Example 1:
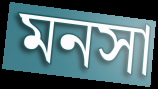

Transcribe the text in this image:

মনসা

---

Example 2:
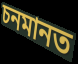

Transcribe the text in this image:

চনমানত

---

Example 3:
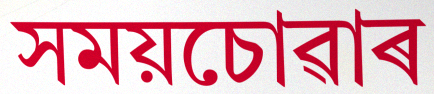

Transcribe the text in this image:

সময়চোৱাৰ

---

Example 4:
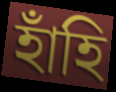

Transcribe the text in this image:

হাঁহি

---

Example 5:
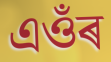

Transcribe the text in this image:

এওঁৰ